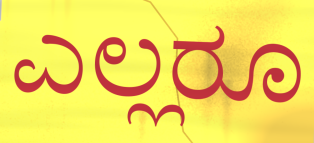
ಎಲ್ಲರೂ